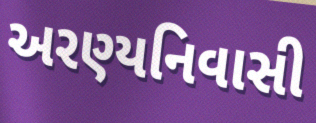
અરણ્યનિવાસી